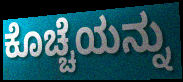
ಕೊಚ್ಚೆಯನ್ನು